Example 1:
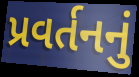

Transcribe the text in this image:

પ્રવર્તનનું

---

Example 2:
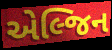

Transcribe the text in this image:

એલ્જિન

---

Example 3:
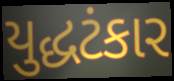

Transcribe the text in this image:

યુદ્ધટંકાર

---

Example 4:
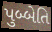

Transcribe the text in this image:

પુબ્બેતિ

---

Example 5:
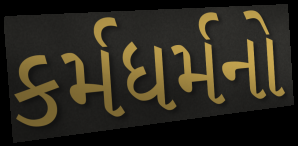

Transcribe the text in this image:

કર્મધર્મનો